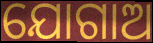
ଯୋଗାଅ